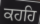
ਕਹਹਿ